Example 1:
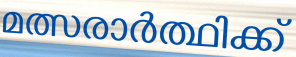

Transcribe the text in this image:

മത്സരാർത്ഥിക്ക്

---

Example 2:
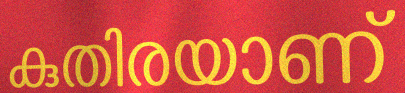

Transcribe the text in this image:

കുതിരയാണ്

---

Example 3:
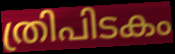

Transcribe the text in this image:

ത്രിപിടകം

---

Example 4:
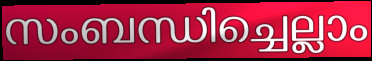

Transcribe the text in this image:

സംബന്ധിച്ചെല്ലാം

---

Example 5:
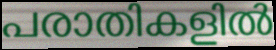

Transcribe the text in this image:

പരാതികളിൽ